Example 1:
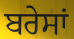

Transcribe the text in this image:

ਬਰੇਸਾਂ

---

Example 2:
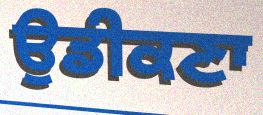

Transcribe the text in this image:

ਉਡੀਕਣਾ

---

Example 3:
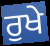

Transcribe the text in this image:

ਰੁਖੇ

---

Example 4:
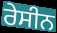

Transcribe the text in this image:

ਰੇਸੀਨ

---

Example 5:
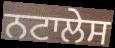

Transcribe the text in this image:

ਨਟਾਲੇਸ